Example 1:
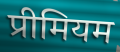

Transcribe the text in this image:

प्रीमियम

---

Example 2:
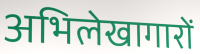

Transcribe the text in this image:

अभिलेखागारों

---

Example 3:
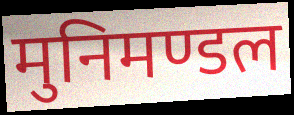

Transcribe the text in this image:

मुनिमण्डल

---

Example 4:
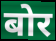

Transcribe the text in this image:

बोर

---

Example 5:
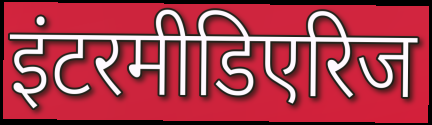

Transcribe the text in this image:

इंटरमीडिएरिज